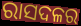
ରାସଦଳର